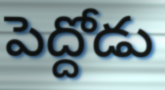
పెద్దోడు